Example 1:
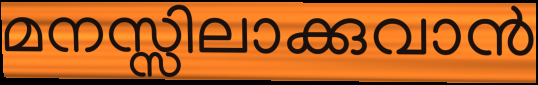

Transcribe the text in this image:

മനസ്സിലാക്കുവാൻ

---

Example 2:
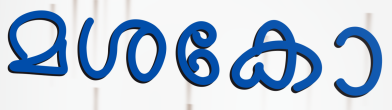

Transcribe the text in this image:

മശകോ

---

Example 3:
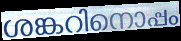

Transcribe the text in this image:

ശങ്കറിനൊപ്പം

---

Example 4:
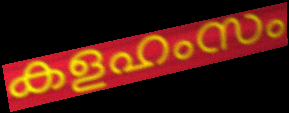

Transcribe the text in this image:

കളഹംസം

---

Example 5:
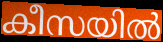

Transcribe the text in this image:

കീസയിൽ